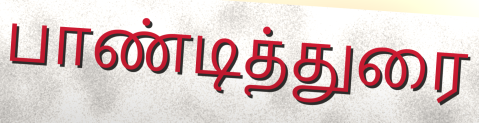
பாண்டித்துரை